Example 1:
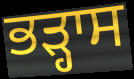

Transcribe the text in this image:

ਭੜ੍ਹਾਸ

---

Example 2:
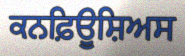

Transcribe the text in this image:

ਕਨਫ਼ਿਊਸ਼ਿਅਸ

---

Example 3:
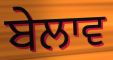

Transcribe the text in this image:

ਬੇਲਾਵ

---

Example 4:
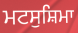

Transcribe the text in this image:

ਮਟਸੁਸ਼ਿਮਾ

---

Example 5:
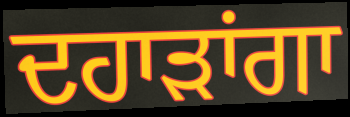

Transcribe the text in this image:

ਦਹਾੜਾਂਗਾ